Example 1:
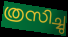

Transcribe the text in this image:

ത്രസിച്ചു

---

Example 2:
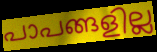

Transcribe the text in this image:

പാപങ്ങളില്ല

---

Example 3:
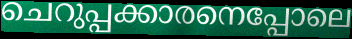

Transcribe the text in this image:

ചെറുപ്പക്കാരനെപ്പോലെ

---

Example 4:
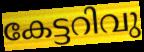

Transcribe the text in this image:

കേട്ടറിവു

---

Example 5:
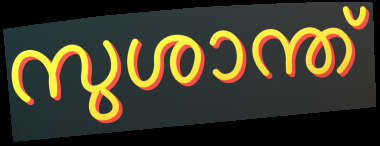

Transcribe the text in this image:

സുശാന്ത്